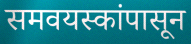
समवयस्कांपासून